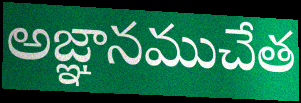
అజ్ఞానముచేత